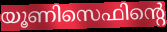
യൂണിസെഫിന്റെ